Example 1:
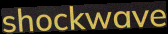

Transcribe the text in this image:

shockwave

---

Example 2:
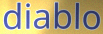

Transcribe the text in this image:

diablo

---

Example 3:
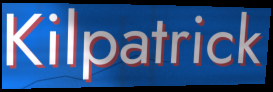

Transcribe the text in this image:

Kilpatrick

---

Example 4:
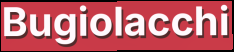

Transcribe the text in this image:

Bugiolacchi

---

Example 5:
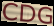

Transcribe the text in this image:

CDG